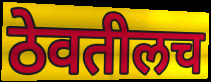
ठेवतीलच